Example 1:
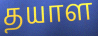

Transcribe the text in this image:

தயாள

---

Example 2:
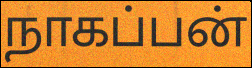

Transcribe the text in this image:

நாகப்பன்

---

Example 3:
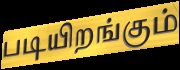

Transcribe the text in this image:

படியிறங்கும்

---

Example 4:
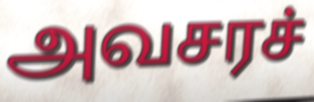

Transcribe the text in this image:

அவசரச்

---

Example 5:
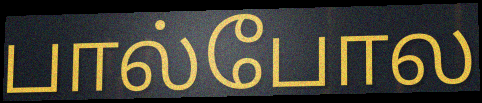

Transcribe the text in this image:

பால்போல